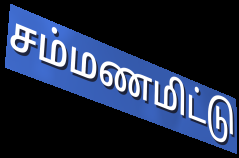
சம்மணமிட்டு